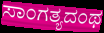
ಸಾಂಗತ್ಯದಂಥ